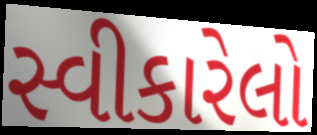
સ્વીકારેલો